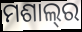
ମଶାଲ୍‌ର